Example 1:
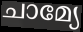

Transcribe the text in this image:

ചാമ്യേ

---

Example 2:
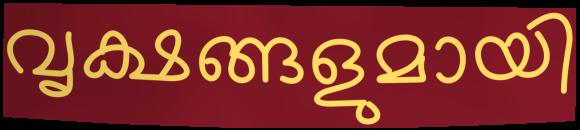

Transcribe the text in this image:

വൃക്ഷങ്ങളുമായി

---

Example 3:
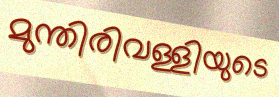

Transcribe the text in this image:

മുന്തിരിവള്ളിയുടെ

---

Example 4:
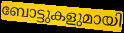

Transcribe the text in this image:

ബോട്ടുകളുമായി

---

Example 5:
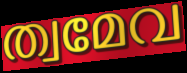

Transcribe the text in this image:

ത്വമേവ